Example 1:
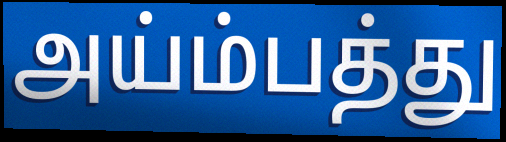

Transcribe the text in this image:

அய்ம்பத்து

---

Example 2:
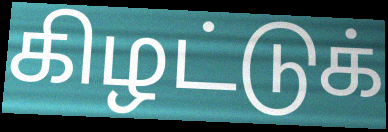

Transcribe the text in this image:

கிழட்டுக்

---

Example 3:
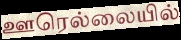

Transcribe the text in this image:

ஊரெல்லையில்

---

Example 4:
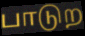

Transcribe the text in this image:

பாடுற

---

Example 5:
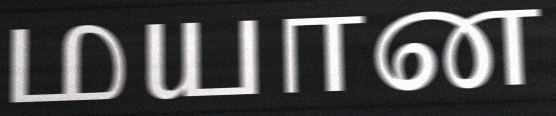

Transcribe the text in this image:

மயான